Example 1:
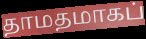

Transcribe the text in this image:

தாமதமாகப்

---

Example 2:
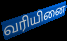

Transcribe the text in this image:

வரியினை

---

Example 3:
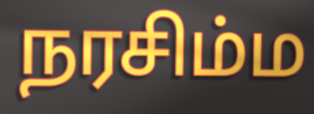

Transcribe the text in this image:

நரசிம்ம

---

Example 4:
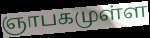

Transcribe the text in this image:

ஞாபகமுள்ள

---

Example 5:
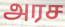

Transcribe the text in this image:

அரச